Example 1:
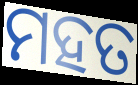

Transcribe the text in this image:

ମହତ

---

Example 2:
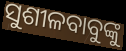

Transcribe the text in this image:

ସୁଶୀଳବାବୁଙ୍କୁ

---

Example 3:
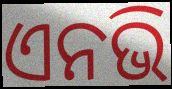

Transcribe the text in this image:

ଏନଭି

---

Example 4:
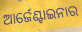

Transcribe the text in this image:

ଆର୍ଜେଣ୍ଟାଇନାର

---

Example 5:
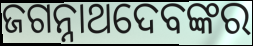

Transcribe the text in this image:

ଜଗନ୍ନାଥଦେବଙ୍କର